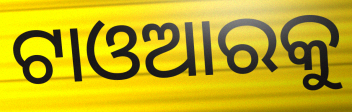
ଟାଓଆରକୁ